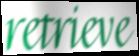
retrieve